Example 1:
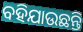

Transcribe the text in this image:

ବହିଯାଉଛନ୍ତି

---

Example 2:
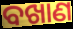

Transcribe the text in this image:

ବଖାଣ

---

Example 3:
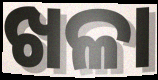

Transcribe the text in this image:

ଖଳା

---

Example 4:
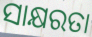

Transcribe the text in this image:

ସାକ୍ଷରତା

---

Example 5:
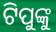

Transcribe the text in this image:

ଟିପୁଙ୍କୁ